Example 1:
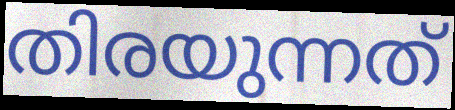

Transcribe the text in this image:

തിരയുന്നത്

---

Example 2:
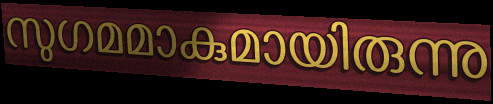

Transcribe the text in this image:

സുഗമമാകുമായിരുന്നു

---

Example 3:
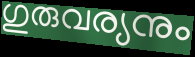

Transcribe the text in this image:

ഗുരുവര്യനും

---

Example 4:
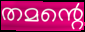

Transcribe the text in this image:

തമന്റെ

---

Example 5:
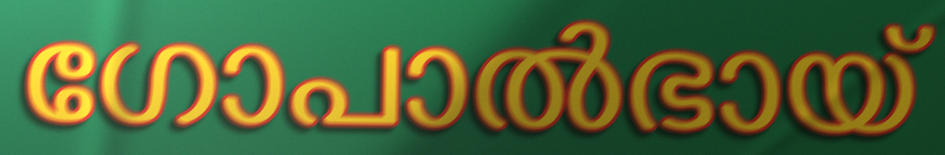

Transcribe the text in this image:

ഗോപാൽഭായ്